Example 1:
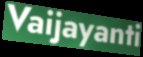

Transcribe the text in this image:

Vaijayanti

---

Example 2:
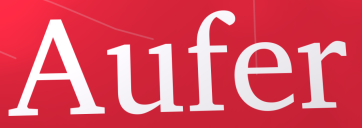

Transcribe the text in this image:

Aufer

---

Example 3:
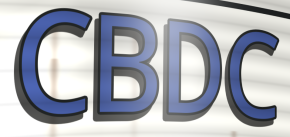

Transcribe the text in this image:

CBDC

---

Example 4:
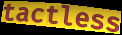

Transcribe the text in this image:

tactless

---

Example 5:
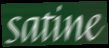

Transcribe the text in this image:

satine